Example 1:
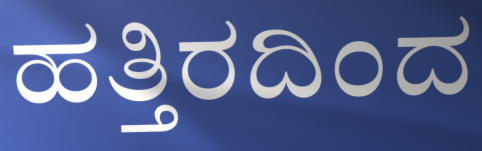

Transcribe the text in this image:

ಹತ್ತಿರದಿಂದ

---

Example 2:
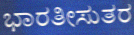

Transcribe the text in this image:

ಭಾರತೀಸುತರ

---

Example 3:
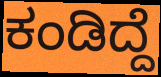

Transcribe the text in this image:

ಕಂಡಿದ್ದೆ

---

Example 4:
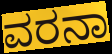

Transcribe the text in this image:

ವರನಾ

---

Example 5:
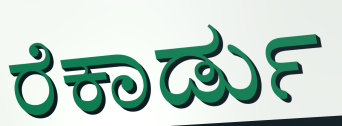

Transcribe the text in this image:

ರೆಕಾರ್ಡು